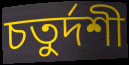
চতুৰ্দশী